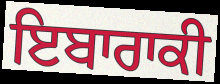
ਇਬਾਰਾਕੀ